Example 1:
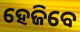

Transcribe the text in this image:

ହେଜିବେ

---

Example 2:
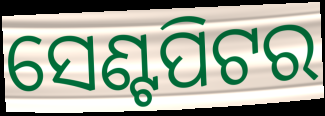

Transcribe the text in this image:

ସେଣ୍ଟପିଟର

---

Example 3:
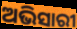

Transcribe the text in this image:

ଅଭିସାରୀ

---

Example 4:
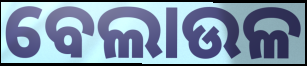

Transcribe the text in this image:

ବେଲାଉଳ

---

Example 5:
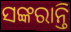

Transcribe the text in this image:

ସଙ୍କରାନ୍ତି